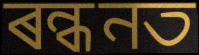
ৰন্ধনত